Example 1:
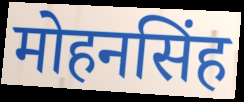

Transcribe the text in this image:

मोहनसिंह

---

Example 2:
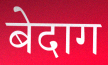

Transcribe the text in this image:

बेदाग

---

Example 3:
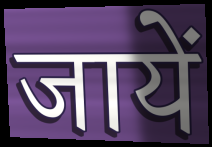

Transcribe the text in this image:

जायें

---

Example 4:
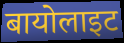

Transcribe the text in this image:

बायोलाइट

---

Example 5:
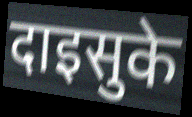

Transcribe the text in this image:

दाइसुके